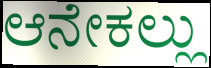
ಆನೇಕಲ್ಲು